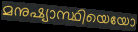
മനുഷ്യാസ്ഥിയെയോ